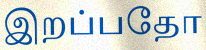
இறப்பதோ